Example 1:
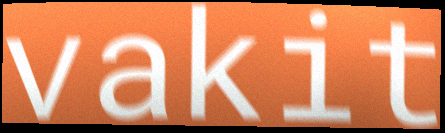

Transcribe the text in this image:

vakit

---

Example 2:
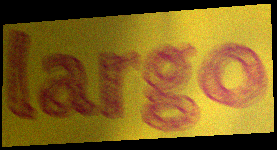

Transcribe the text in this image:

largo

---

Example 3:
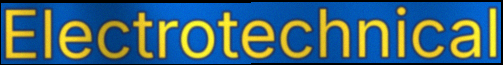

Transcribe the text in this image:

Electrotechnical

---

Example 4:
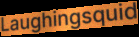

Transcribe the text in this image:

Laughingsquid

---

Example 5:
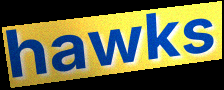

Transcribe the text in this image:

hawks